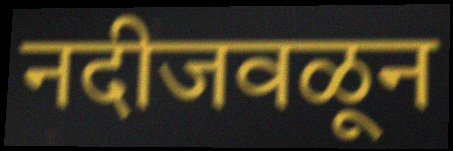
नदीजवळून